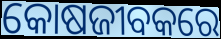
କୋଷଜୀବକରେ